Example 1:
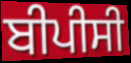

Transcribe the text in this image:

ਬੀਪੀਸੀ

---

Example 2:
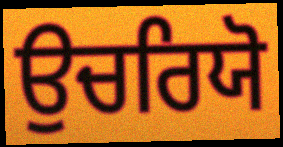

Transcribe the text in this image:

ਉਚਰਿਯੋ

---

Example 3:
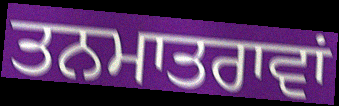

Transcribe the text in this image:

ਤਨਮਾਤਰਾਵਾਂ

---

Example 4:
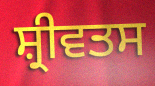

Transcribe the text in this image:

ਸ਼੍ਰੀਵਤਸ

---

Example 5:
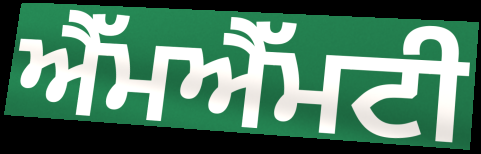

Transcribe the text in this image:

ਐੱਮਐੱਮਟੀ